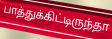
பாத்துக்கிட்டிருந்தா